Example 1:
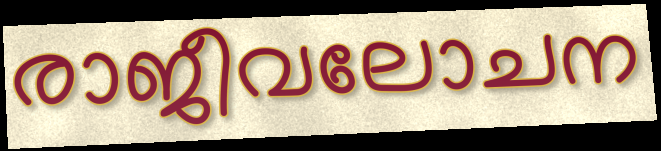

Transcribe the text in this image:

രാജീവലോചന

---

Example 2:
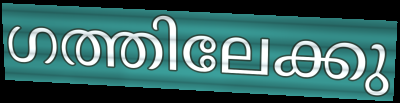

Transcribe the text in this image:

ഗത്തിലേക്കു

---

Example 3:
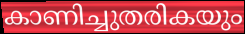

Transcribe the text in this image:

കാണിച്ചുതരികയും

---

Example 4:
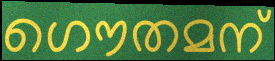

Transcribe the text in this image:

ഗൌതമന്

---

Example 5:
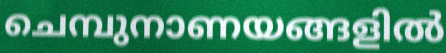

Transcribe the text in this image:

ചെമ്പുനാണയങ്ങളിൽ